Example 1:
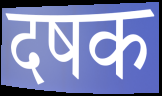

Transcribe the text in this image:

दषक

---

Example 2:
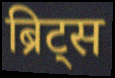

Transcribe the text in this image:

ब्रिट्स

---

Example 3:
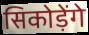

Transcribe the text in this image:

सिकोड़ेंगे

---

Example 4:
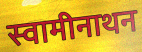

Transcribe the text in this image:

स्वामीनाथन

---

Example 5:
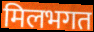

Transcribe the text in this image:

मिलभगत